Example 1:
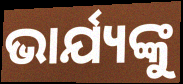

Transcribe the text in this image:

ଭାର୍ଯ୍ୟଙ୍କୁ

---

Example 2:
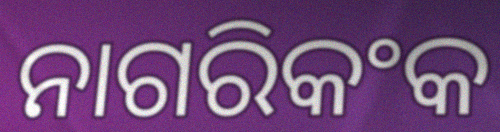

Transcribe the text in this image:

ନାଗରିକଂକ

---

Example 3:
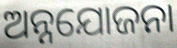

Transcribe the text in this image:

ଅନ୍ନଯୋଜନା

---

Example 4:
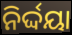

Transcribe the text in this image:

ନିର୍ଦ୍ଦୟା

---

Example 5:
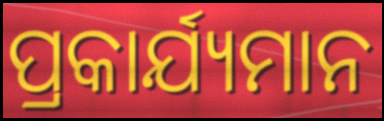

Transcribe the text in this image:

ପ୍ରକାର୍ଯ୍ୟମାନ